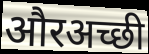
औरअच्छी